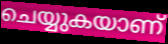
ചെയ്യുകയാണ്